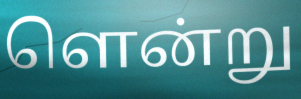
ளென்று